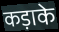
कड़ाके